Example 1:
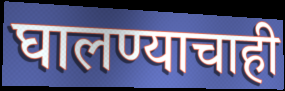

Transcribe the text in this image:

घालण्याचाही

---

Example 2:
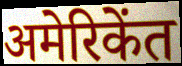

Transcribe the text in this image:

अमेरिकेंत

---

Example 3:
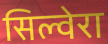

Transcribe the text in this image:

सिल्वेरा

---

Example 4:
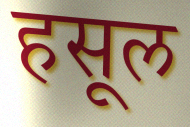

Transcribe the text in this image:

हसूल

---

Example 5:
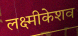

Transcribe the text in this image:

लक्ष्मीकेशव